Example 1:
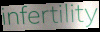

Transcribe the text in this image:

infertility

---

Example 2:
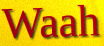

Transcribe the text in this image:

Waah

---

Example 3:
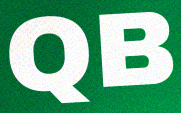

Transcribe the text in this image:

QB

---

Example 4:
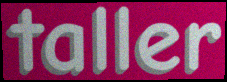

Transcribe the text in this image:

taller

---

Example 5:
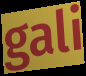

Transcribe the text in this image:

gali